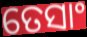
ତେସାଂ